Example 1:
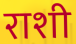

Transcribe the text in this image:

राशी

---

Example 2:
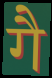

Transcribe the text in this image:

गै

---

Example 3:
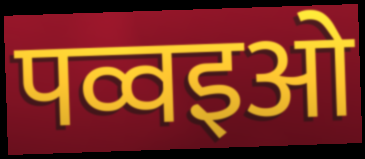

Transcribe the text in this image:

पव्वइओ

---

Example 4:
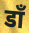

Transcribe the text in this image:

डॉं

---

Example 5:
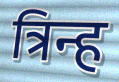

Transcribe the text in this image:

त्रिन्ह